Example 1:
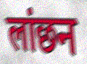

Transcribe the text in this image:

लांछन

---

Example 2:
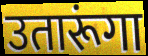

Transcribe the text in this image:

उतारूंगा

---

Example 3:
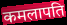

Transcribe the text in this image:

कमलापति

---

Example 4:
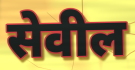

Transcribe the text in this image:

सेवील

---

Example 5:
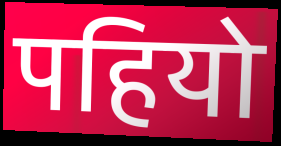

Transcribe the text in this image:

पहियो